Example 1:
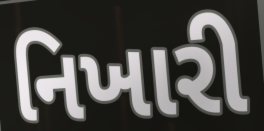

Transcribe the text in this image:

નિખારી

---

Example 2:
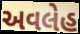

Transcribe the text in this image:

અવલેહ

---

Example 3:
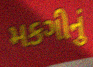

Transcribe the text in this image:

મકગીનું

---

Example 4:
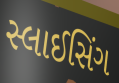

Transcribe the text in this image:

સ્લાઈસિંગ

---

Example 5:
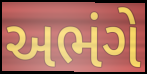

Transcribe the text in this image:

અભંગે